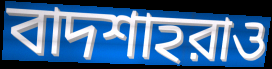
বাদশাহরাও